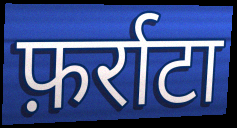
फ़र्राटा